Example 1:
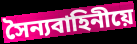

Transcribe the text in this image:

সৈন্যবাহিনীয়ে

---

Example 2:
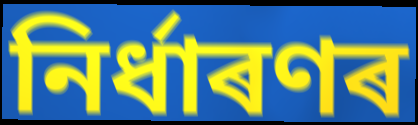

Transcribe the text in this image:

নিৰ্ধাৰণৰ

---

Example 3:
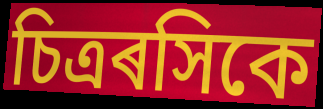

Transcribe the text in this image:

চিত্ৰৰসিকে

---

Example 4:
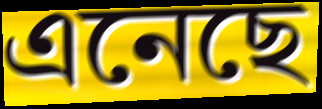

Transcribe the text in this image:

এনেছে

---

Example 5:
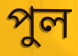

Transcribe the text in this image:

পুল